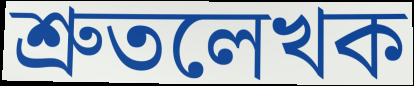
শ্রুতলেখক